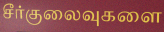
சீர்குலைவுகளை